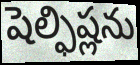
షెల్ఫిష్లను